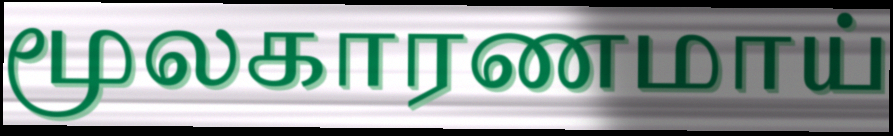
மூலகாரணமாய்